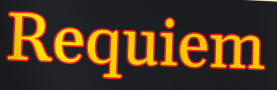
Requiem